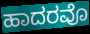
ಹಾದರವೊ